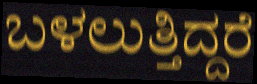
ಬಳಲುತ್ತಿದ್ದರೆ